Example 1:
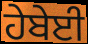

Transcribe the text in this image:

ਹੇਬੇਈ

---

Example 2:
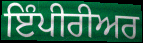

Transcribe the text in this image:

ਇੰਪੀਰੀਅਰ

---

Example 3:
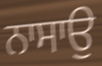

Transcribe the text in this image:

ਨਾਸਾਉ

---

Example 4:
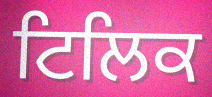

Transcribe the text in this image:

ਟਿਲਿਕ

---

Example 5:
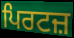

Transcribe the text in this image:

ਪਿਰਟਜ਼